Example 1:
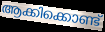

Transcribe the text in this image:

ആക്കിക്കൊണ്ട്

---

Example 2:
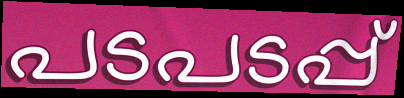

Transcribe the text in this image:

പടപടപ്പ്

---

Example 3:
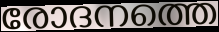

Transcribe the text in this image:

രോദനത്തെ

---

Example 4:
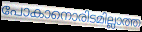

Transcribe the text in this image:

പോകാനൊരിടമില്ലാത്ത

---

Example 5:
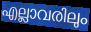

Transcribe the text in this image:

എല്ലാവരിലും